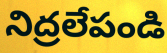
నిద్రలేపండి